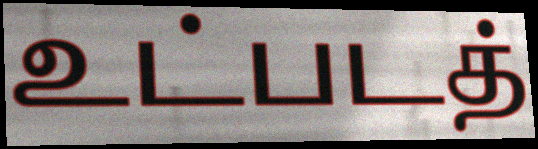
உட்படத்